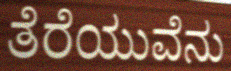
ತೆರೆಯುವೆನು